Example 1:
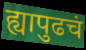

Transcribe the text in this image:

ह्यापुढचं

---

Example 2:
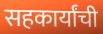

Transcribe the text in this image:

सहकार्यांची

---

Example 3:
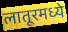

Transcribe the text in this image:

लातूरमध्ये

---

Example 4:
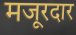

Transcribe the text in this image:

मजूरदार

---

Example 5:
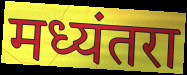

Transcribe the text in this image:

मध्यंतरा